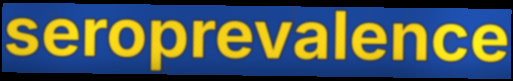
seroprevalence